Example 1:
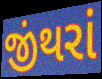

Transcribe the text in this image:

જીંથરાં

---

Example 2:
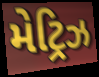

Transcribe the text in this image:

મેટ્રિઝ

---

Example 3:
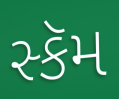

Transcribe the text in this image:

સ્કૅમ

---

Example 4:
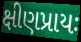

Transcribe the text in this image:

ક્ષીણપ્રાયઃ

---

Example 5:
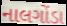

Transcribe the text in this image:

નાલગોંડા